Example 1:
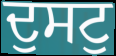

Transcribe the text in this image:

ਦੁਸਟੁ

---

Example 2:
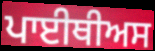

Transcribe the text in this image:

ਪਾਈਥੀਅਸ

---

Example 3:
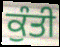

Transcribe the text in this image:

ਕੁੰਤੀ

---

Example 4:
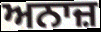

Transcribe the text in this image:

ਅਨਾਜ਼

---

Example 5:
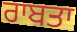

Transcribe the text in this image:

ਰਾਬਤਾ